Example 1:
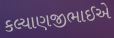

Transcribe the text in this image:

કલ્યાણજીભાઈએ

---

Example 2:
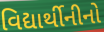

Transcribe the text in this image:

વિદ્યાર્થીનીનો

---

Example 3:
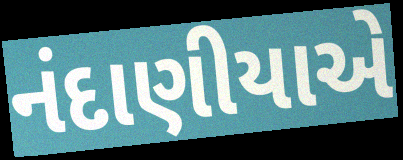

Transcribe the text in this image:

નંદાણીયાએ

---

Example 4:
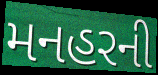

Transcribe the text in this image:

મનહરની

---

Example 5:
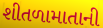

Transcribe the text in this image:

શીતળામાતાની